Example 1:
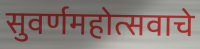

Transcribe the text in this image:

सुवर्णमहोत्सवाचे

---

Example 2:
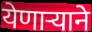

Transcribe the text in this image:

येणाऱ्याने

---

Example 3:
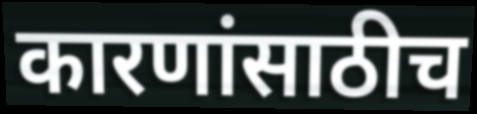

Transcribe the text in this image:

कारणांसाठीच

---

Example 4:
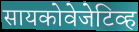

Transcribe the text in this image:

सायकोवेजेटिव्ह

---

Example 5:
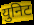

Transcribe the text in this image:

युनिट